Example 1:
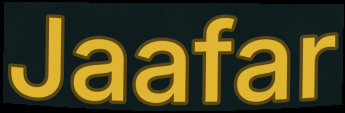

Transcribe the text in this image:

Jaafar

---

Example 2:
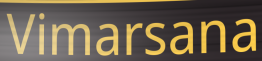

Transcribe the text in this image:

Vimarsana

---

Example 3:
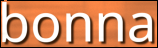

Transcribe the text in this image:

bonna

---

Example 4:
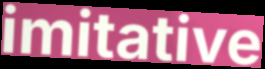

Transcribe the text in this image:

imitative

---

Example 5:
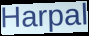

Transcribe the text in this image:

Harpal